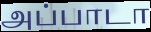
அப்பாடா